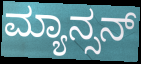
ಮ್ಯಾನ್ಸನ್